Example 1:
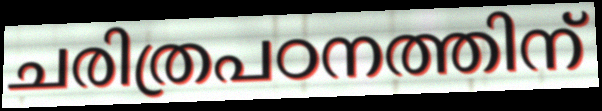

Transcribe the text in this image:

ചരിത്രപഠനത്തിന്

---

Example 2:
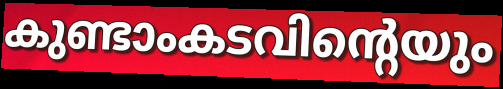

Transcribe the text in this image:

കുണ്ടാംകടവിന്റെയും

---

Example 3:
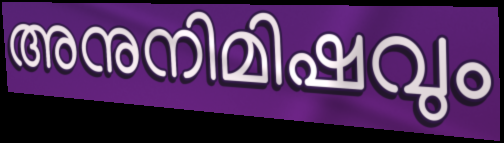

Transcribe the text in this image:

അനുനിമിഷവും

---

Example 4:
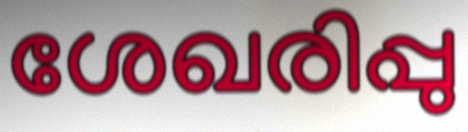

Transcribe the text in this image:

ശേഖരിപ്പു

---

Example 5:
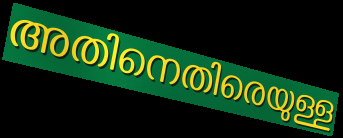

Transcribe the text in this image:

അതിനെതിരെയുള്ള